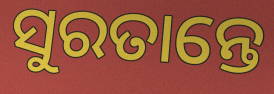
ସୁରତାନ୍ତେ